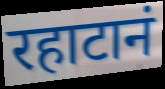
रहाटानं